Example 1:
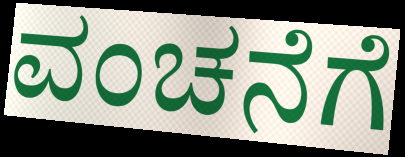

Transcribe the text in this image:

ವಂಚನೆಗೆ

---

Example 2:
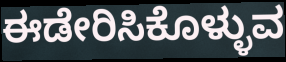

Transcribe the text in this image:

ಈಡೇರಿಸಿಕೊಳ್ಳುವ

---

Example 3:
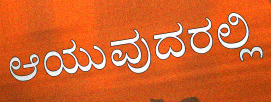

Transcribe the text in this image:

ಆಯುವುದರಲ್ಲಿ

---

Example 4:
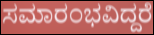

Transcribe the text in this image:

ಸಮಾರಂಭವಿದ್ದರೆ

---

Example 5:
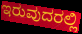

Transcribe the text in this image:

ಇರುವುದರಲ್ಲಿ